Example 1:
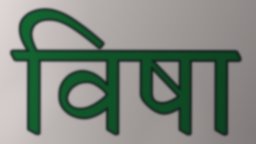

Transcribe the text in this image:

विषा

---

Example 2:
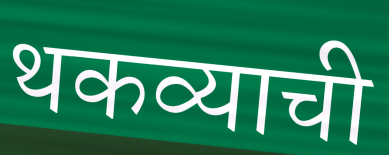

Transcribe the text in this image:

थकव्याची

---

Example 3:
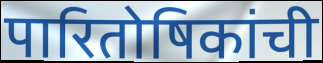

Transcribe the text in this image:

पारितोषिकांची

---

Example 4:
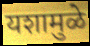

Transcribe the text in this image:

यशामुळे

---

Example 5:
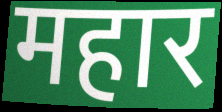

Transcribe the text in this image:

महार